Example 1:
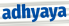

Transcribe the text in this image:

adhyaya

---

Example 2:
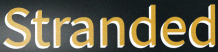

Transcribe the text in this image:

Stranded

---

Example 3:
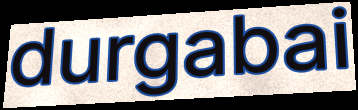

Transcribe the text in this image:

durgabai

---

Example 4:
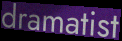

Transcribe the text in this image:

dramatist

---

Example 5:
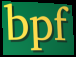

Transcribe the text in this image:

bpf